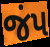
જંપ